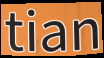
tian